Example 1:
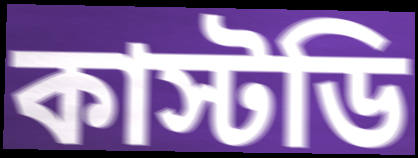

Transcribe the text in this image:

কাস্টডি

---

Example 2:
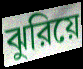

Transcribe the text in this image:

ঝুরিয়ে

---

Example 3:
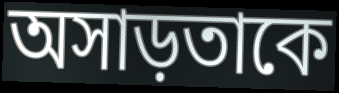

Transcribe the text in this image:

অসাড়তাকে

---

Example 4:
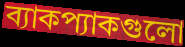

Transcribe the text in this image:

ব্যাকপ্যাকগুলো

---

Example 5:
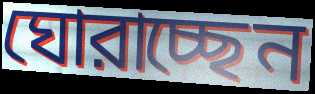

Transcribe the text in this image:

ঘোরাচ্ছেন